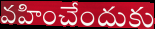
వహించేందుకు